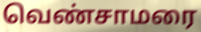
வெண்சாமரை